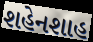
શહેનશાહ